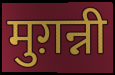
मुग़न्नी